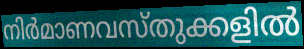
നിർമാണവസ്തുക്കളിൽ